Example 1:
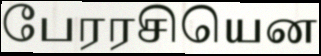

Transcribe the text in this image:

பேரரசியென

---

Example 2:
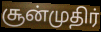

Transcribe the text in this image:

சூன்முதிர்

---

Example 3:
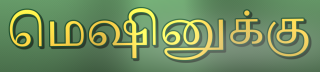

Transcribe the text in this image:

மெஷினுக்கு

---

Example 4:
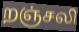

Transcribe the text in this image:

றஞ்சலி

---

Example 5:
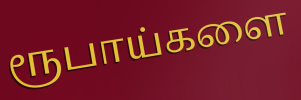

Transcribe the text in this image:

ரூபாய்களை